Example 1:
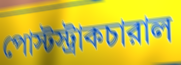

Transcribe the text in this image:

পোস্টস্ট্রাকচারাল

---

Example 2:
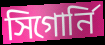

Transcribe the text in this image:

সিগোর্নি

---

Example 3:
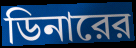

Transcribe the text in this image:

ডিনারের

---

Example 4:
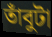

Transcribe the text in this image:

তাঁবুটা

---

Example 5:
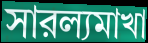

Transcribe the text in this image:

সারল্যমাখা